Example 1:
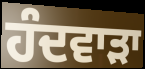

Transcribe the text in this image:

ਹੰਦਵਾੜਾ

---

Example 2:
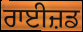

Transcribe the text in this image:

ਰਾਈਜ਼ਡ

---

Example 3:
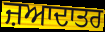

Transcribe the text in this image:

ਜ਼ਆਦਾਤਰ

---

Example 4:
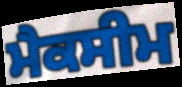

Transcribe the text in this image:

ਮੈਕਸੀਮ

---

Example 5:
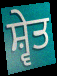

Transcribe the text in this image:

ਸ਼੍ਵੇਤ